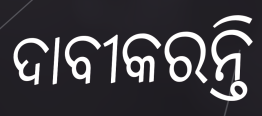
ଦାବୀକରନ୍ତି